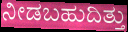
ನೀಡಬಹುದಿತ್ತು